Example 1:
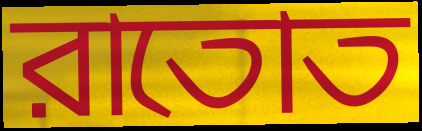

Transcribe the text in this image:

রাতোত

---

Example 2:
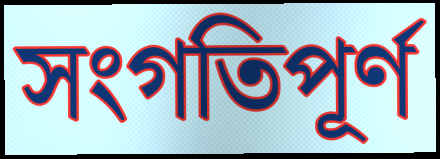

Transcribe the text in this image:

সংগতিপূর্ণ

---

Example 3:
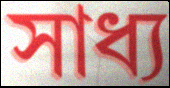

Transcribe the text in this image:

সাধ্য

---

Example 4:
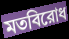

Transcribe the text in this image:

মতবিরোধ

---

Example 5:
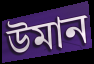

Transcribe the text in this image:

উমান